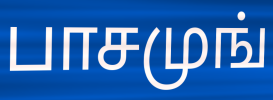
பாசமுங்